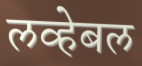
लव्हेबल